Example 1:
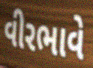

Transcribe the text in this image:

વીરભાવે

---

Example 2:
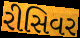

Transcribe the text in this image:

રીસિવર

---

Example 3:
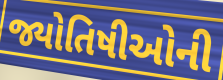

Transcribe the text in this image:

જ્યોતિષીઓની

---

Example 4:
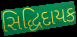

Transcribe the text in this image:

સિદ્ધિદાયક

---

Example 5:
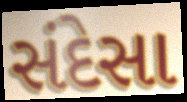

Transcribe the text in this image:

સંદેસા